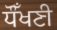
ਧੌਁਖਣੀ